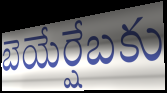
బెయేర్షేబకు